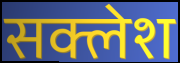
सक्लेश